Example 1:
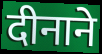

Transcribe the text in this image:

दीनाने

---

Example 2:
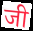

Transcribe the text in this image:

जी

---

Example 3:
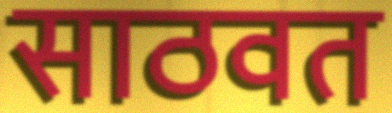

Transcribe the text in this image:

साठवत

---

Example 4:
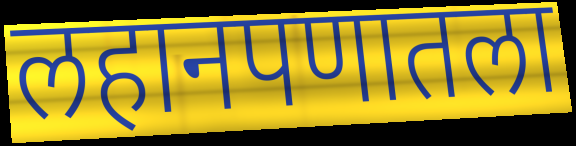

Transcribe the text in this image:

लहानपणातला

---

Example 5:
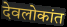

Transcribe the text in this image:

देवलोकांत